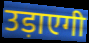
उड़ाएगी